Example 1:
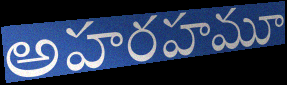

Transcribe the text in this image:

అహరహమూ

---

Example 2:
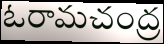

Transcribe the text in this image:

ఓరామచంద్ర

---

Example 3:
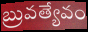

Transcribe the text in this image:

బ్రువత్యేవం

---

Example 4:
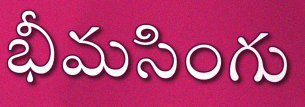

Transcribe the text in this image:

భీమసింగు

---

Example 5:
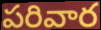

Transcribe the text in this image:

పరివార